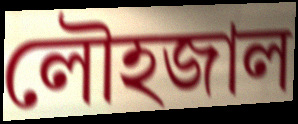
লৌহজাল